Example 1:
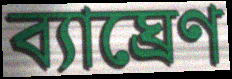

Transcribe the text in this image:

ব্যাঘ্রেণ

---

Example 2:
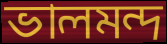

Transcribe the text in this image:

ভালমন্দ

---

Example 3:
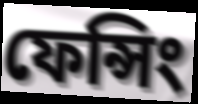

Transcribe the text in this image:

ফেন্সিং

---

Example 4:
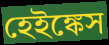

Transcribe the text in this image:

হেইঙ্কেস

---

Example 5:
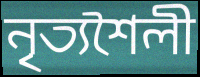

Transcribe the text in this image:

নৃত্যশৈলী